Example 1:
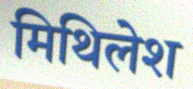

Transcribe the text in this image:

मिथिलेश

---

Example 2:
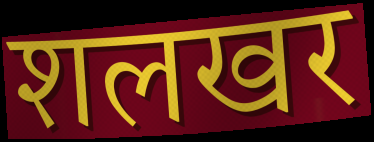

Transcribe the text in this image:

शलखर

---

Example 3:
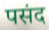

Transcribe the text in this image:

पसंद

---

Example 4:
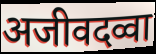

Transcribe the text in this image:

अजीवदव्वा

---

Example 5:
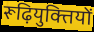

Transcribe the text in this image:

रूढ़ियुक्तियों